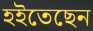
হইতেছেন